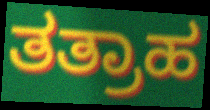
ತತ್ರಾಹ